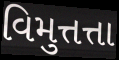
વિમુત્તત્તા